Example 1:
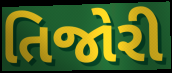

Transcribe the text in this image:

તિજોરી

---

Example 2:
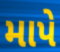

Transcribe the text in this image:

માપે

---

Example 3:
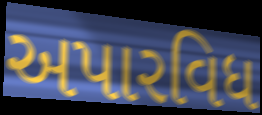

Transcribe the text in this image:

અપારવિધ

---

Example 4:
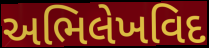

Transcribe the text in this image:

અભિલેખવિદ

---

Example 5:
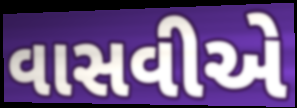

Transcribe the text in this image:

વાસવીએ